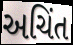
અચિંત